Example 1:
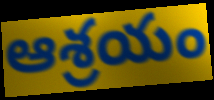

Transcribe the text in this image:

ఆశ్రయం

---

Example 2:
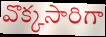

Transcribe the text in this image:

వొక్కసారిగా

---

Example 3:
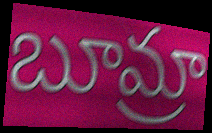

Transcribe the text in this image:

బూమ్రా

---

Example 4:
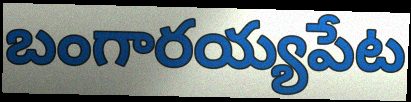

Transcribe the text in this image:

బంగారయ్యపేట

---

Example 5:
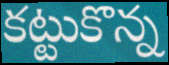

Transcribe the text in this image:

కట్టుకొన్న